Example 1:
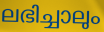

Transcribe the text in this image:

ലഭിച്ചാലും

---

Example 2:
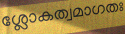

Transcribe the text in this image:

ശ്ലോകത്വമാഗതഃ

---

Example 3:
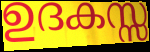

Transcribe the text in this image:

ഉദകസ്സ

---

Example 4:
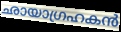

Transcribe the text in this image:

ഛായാഗ്രഹകൻ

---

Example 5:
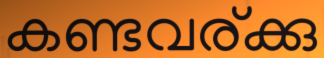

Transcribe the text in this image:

കണ്ടവര്ക്കു